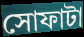
সোফাটা